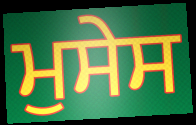
ਮੁਸੇਸ